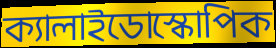
ক্যালাইডোস্কোপিক